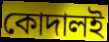
কোদালই